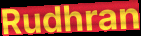
Rudhran